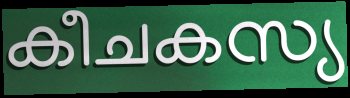
കീചകസ്യ